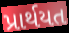
પ્રાર્થયત